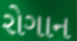
રોગાન